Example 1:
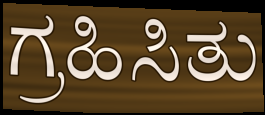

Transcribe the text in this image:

ಗ್ರಹಿಸಿತು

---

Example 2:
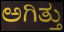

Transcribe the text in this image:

ಅಗಿತ್ತು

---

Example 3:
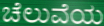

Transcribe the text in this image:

ಚೆಲುವೆಯ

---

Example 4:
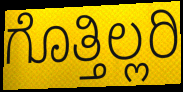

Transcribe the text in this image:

ಗೊತ್ತಿಲ್ಲರಿ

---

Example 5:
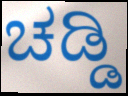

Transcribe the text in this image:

ಚಡ್ಡಿ